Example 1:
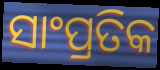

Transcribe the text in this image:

ସାଂପ୍ରତିକ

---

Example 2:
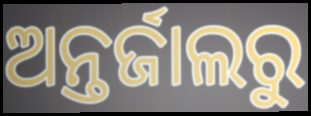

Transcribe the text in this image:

ଅନ୍ତର୍ଜାଲରୁ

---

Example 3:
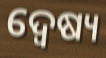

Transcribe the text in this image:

ଦ୍ୱେଷ୍ୟ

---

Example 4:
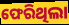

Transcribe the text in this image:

ଫେରିଥିଲା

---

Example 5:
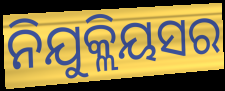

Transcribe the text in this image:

ନିଯୁକ୍ଲିୟସର